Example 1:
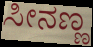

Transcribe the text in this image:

ಸೀನಣ್ಣ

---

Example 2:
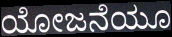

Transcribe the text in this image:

ಯೋಜನೆಯೂ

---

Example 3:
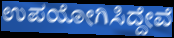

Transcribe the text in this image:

ಉಪಯೋಗಿಸಿದ್ದೇವೆ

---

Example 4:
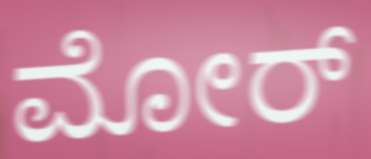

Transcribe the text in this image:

ಮೋರ್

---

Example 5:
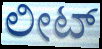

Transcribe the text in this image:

ಲೀಟ್